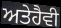
ਅਤੇਹੈਵੀ